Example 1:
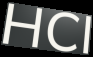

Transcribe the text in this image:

HCI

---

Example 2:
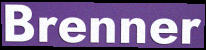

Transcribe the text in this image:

Brenner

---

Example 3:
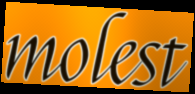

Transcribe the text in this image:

molest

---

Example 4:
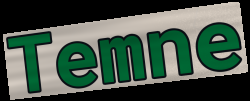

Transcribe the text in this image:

Temne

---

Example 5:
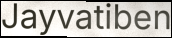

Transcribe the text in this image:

Jayvatiben